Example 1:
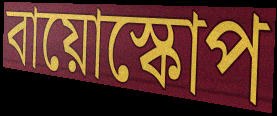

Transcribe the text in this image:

বায়োস্কোপ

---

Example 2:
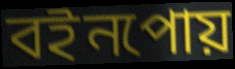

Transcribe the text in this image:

বইনপোয়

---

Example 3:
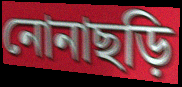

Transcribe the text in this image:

নোনাছড়ি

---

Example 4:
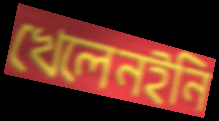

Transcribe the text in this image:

খেলেনইনি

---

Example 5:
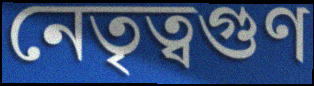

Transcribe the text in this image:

নেতৃত্বগুণ